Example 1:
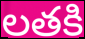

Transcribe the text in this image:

లతకి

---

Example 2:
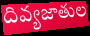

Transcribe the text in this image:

దివ్యజాతుల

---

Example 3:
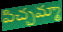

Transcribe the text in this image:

పిచ్చమ్మా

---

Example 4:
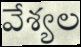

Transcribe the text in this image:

వేశ్యల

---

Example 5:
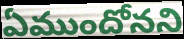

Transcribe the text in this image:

ఏముందోనని